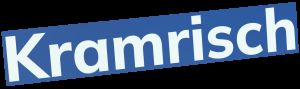
Kramrisch